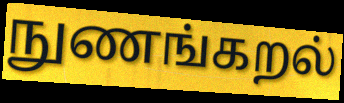
நுணங்கறல்